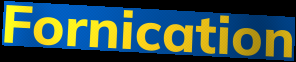
Fornication